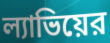
ল্যাভিয়ের